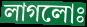
লাগলোঃ